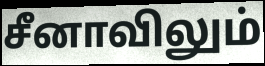
சீனாவிலும்